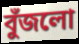
বুঁজলো